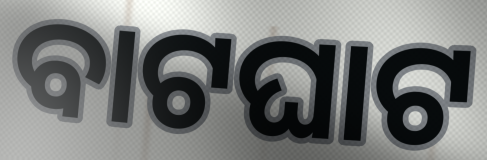
ବାଟଘାଟ